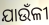
ଯାଉଁଳୀ